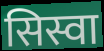
सिस्वा